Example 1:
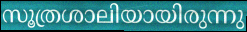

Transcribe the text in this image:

സൂത്രശാലിയായിരുന്നു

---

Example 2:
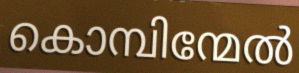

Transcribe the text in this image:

കൊമ്പിന്മേൽ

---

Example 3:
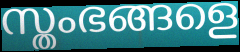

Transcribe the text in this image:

സ്തംഭങ്ങളെ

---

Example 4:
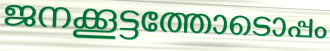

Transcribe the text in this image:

ജനക്കൂട്ടത്തോടൊപ്പം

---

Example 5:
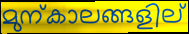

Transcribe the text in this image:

മുന്കാലങ്ങളില്